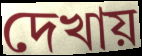
দেখায়